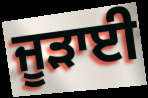
ਜੂੜਾਈ